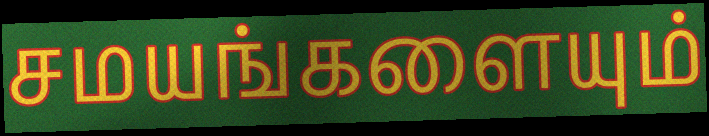
சமயங்களையும்